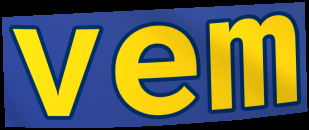
vem